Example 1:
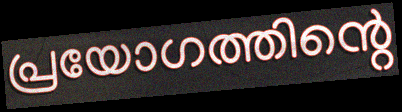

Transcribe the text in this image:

പ്രയോഗത്തിന്റെ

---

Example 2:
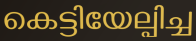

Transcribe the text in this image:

കെട്ടിയേല്പിച്ച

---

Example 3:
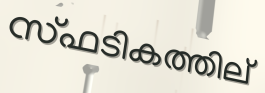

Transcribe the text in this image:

സ്ഫടികത്തില്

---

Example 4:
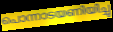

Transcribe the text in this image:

പൊന്നാടയണിയിച്ചു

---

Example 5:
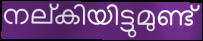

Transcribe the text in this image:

നല്കിയിട്ടുമുണ്ട്